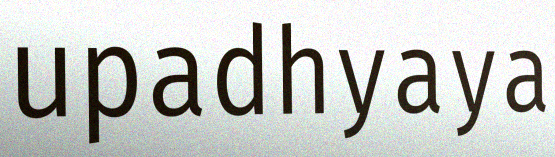
upadhyaya